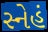
સ્નેહં